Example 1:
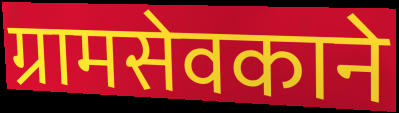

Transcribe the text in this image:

ग्रामसेवकाने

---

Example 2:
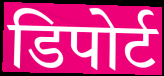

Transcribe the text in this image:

डिपोर्ट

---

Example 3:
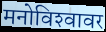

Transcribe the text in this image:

मनोविश्वावर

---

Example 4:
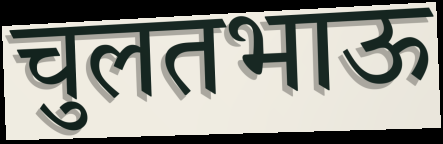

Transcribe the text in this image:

चुलतभाऊ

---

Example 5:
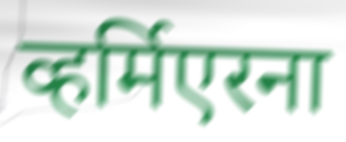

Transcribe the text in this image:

व्हर्मिएरना